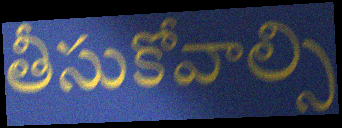
తీసుకోవాల్సి